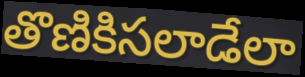
తొణికిసలాడేలా